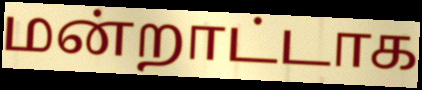
மன்றாட்டாக